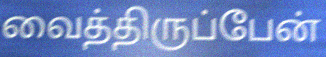
வைத்திருப்பேன்